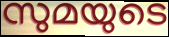
സുമയുടെ